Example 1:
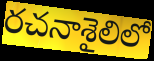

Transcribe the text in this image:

రచనాశైలిలో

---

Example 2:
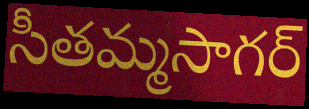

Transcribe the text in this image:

సీతమ్మసాగర్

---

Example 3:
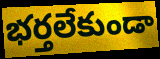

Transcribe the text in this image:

భర్తలేకుండా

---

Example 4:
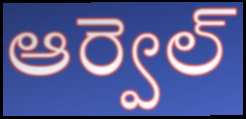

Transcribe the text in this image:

ఆర్వెల్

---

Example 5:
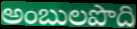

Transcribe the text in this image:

అంబులపొది